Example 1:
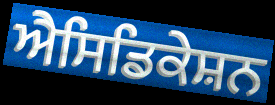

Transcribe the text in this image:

ਐਸਿਡਿਕੇਸ਼ਨ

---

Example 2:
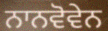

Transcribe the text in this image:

ਨਾਨਵੋਵੇਨ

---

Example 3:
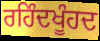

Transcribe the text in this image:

ਰਹਿੰਦਖੂੰਹਦ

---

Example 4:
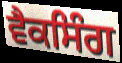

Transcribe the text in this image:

ਵੈਕਸਿੰਗ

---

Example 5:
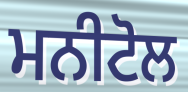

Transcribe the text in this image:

ਮਨੀਟੋਲ